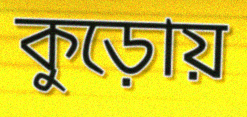
কুড়োয়